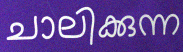
ചാലിക്കുന്ന